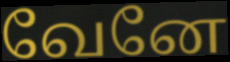
வேனே